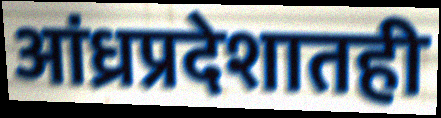
आंध्रप्रदेशातही